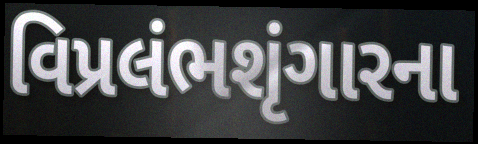
વિપ્રલંભશૃંગારના